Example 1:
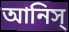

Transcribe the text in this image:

আনিস্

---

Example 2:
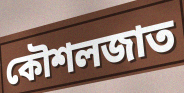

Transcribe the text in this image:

কৌশলজাত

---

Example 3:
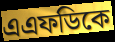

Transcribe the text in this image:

এএফডিকে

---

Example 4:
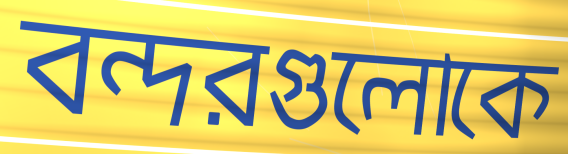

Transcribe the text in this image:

বন্দরগুলোকে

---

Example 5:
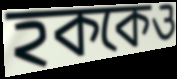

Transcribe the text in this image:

হককেও